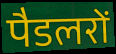
पैडलरों